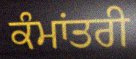
ਕੰਮਾਂਤਰੀ